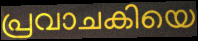
പ്രവാചകിയെ